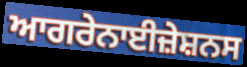
ਆਗਰੇਨਾਈਜ਼ੇਸ਼ਨਸ